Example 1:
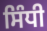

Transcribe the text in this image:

ਸਿੰਧੀ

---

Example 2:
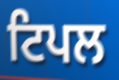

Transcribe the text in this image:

ਟਿਪਲ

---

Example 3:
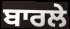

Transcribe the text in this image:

ਬਾਰਲੇ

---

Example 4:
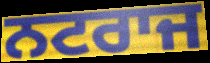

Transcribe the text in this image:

ਨਟਰਾਜ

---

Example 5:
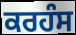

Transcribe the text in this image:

ਕਰਹੰਸ